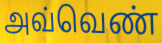
அவ்வெண்